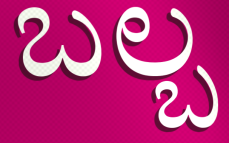
ಬಲ್ಬ